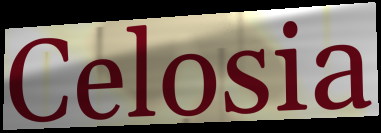
Celosia